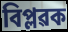
বিপ্লৱক